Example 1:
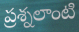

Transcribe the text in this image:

ప్రశ్నలాంటి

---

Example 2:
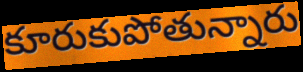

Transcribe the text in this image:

కూరుకుపోతున్నారు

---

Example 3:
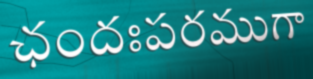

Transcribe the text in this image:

ఛందఃపరముగా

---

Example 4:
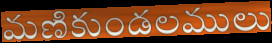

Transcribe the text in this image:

మణికుండలములు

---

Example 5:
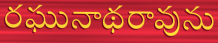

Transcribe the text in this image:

రఘునాథరావును